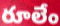
రూలేం